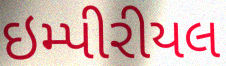
ઇમ્પીરીયલ